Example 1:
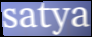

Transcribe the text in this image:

satya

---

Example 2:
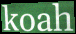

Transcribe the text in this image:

koah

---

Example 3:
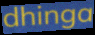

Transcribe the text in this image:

dhinga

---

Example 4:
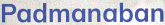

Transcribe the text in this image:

Padmanaban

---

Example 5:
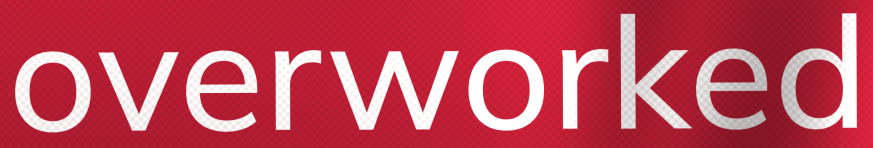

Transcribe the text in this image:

overworked